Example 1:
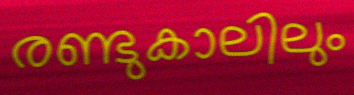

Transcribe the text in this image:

രണ്ടുകാലിലും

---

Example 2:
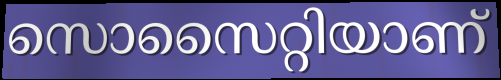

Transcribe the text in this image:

സൊസൈറ്റിയാണ്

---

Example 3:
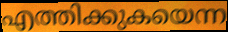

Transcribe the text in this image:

എത്തിക്കുകയെന്ന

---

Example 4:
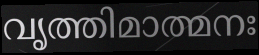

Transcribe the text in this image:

വൃത്തിമാത്മനഃ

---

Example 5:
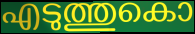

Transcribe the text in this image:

എടുത്തുകൊ